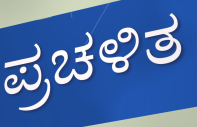
ಪ್ರಚಳಿತ